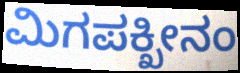
ಮಿಗಪಕ್ಖೀನಂ